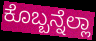
ಕೊಬ್ಬನ್ನೆಲ್ಲಾ